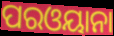
ପରଓୟାନା